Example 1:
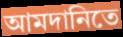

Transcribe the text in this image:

আমদানিতে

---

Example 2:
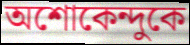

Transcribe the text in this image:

অশোকেন্দুকে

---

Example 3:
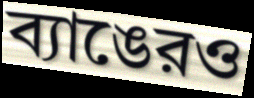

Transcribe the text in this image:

ব্যাঙেরও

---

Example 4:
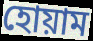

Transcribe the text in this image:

হোয়াম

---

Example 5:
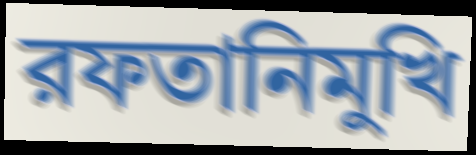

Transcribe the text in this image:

রফতানিমুখি